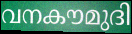
വനകൗമുദി